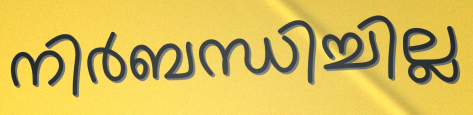
നിർബന്ധിച്ചില്ല